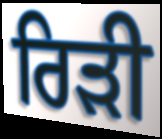
ਰਿੜੀ